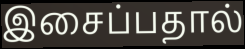
இசைப்பதால்